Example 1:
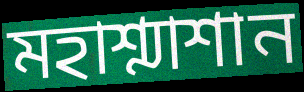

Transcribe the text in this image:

মহাশ্মাশান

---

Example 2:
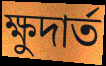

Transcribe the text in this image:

ক্ষুদার্ত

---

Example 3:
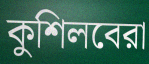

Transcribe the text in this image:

কুশিলবেরা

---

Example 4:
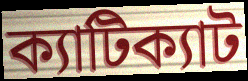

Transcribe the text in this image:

ক্যাটিক্যাট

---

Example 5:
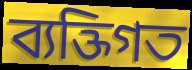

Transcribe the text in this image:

ব্যক্তিগত